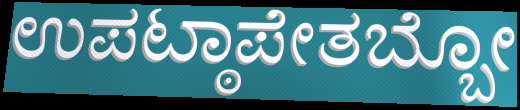
ಉಪಟ್ಠಾಪೇತಬ್ಬೋ